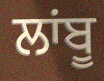
ਲਾਂਬੂ